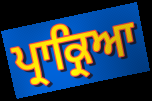
ਪ੍ਰਾਕ੍ਰਿਆ